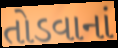
તોડવાનાં